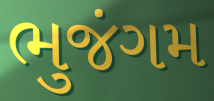
ભુજંગમ